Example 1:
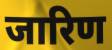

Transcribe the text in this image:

जारिण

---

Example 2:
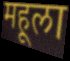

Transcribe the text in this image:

महूला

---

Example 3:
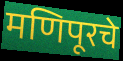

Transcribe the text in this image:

मणिपूरचे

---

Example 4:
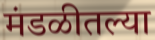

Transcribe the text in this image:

मंडळीतल्या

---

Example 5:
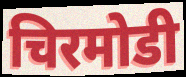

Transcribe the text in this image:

चिरमोडी